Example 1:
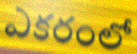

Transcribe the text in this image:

ఎకరంలో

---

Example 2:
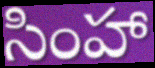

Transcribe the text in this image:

సింహా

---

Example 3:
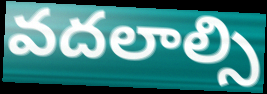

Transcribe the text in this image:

వదలాల్సి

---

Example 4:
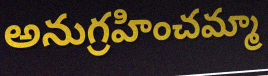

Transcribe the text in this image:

అనుగ్రహించమ్మా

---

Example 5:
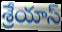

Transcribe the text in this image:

శ్రేయాస్